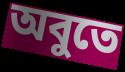
অবুতে